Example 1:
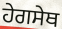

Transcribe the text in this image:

ਹੇਗਸੇਥ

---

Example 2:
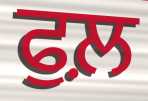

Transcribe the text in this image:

ਫੁਲ਼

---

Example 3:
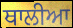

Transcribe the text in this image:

ਥਾਲੀਆ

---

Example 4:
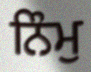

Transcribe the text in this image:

ਨਿੰਮੁ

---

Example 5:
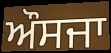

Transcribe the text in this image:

ਔਸਜਾ